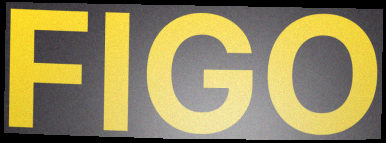
FIGO